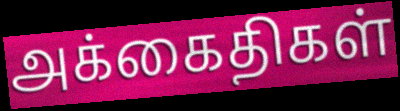
அக்கைதிகள்